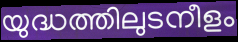
യുദ്ധത്തിലുടനീളം